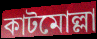
কাটমোল্লা